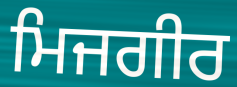
ਮਿਜਗੀਰ